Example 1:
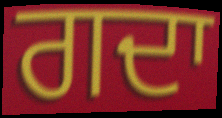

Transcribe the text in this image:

ਗਦਾ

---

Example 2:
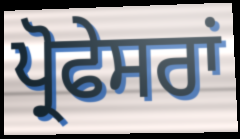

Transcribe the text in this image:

ਪ੍ਰੋਫੇਸਰਾਂ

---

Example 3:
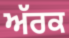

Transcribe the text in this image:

ਅੱਰਕ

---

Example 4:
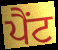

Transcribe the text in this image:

ਪੈਂਟ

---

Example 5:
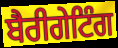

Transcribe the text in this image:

ਬੈਰੀਗੇਟਿੰਗ